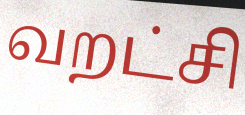
வறட்சி